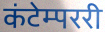
कंटेम्पररी